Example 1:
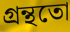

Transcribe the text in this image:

গ্ৰন্থতো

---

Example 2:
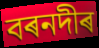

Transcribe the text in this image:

বৰনদীৰ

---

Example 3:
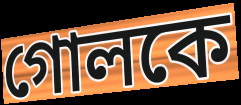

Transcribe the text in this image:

গোলকে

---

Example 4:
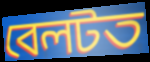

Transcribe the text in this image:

বেলটত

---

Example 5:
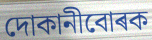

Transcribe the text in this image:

দোকানীবোৰক